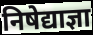
निषेद्याज्ञा